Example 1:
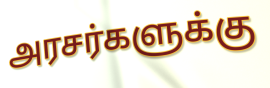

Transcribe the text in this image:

அரசர்களுக்கு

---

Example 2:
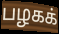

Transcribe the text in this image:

பழகக்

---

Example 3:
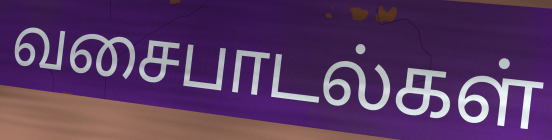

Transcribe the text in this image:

வசைபாடல்கள்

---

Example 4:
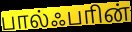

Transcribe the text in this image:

பால்ஃபரின்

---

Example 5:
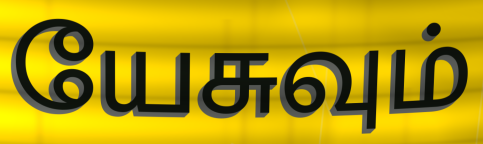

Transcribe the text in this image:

யேசுவும்